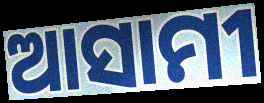
ଆସାମୀ